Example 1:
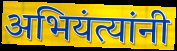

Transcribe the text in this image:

अभियंत्यांनी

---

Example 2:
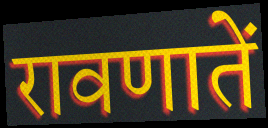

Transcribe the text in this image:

रावणातें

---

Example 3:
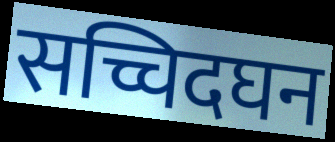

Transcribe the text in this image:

सच्चिदघन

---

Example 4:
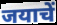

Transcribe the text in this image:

जयाचें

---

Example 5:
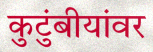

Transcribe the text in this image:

कुटुंबीयांवर